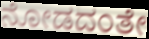
ನೋಡದಂತೇ